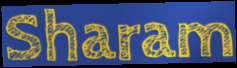
Sharam